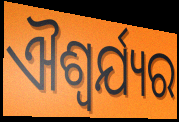
ଐଶ୍ଵର୍ଯ୍ୟର